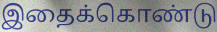
இதைக்கொண்டு